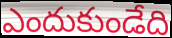
ఎందుకుండేది